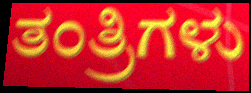
ತಂತ್ರಿಗಳು